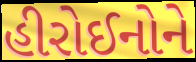
હીરોઈનોને